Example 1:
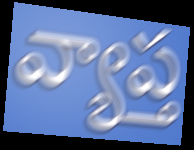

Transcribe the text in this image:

వ్యాప్త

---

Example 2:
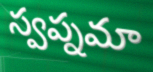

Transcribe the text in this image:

స్వప్నమా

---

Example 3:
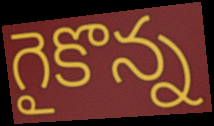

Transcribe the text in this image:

గైకొన్న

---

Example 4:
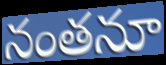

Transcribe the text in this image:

నంతనూ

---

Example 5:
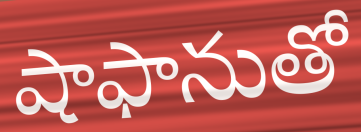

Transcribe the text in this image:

షాఫానుతో